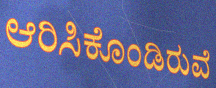
ಆರಿಸಿಕೊಂಡಿರುವೆ